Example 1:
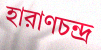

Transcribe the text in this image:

হারাণচন্দ্র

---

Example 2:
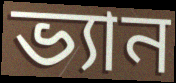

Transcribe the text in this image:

ভ্যান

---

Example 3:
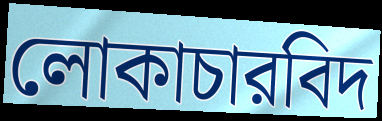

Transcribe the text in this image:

লোকাচারবিদ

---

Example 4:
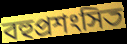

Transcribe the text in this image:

বহুপ্রশংসিত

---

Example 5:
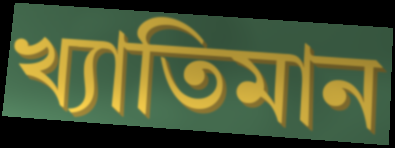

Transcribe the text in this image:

খ্যাতিমান